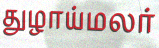
துழாய்மலர்